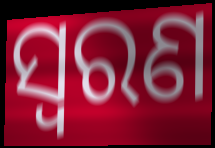
ସ୍ୱରଣ